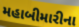
મહાબીમારીના